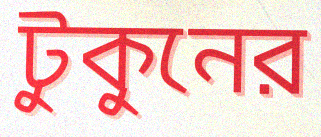
টুকুনের